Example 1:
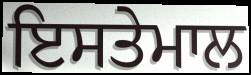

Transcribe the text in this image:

ਇਸਤੇਮਾਲ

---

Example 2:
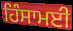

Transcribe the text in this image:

ਹਿੰਸਾਮਈ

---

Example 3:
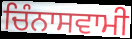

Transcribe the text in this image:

ਚਿੰਨਾਸਵਾਮੀ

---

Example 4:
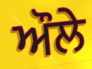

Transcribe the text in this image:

ਔਲੇ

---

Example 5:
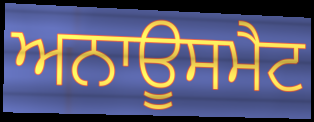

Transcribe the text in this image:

ਅਨਾਊਸਮੈਟ